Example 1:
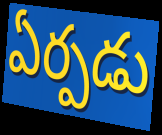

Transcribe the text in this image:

ఏర్పడు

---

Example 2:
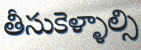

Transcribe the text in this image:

తీసుకెళ్ళాల్సి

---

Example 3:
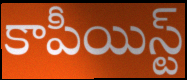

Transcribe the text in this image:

కాపీయిస్ట్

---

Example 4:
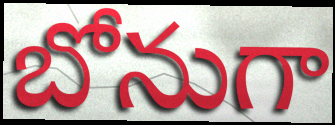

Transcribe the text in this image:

బోనుగా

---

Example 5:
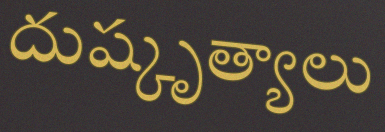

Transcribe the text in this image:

దుష్కృత్యాలు